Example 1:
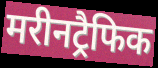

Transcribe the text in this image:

मरीनट्रैफिक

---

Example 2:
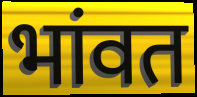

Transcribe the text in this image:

भांवत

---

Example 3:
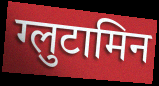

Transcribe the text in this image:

ग्लुटामिन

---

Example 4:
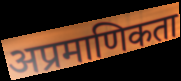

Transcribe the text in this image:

अप्रमाणिकता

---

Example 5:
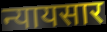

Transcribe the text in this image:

न्यायसार